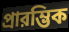
প্রারম্ভিক